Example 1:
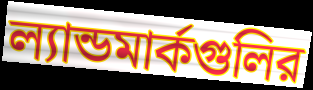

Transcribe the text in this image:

ল্যান্ডমার্কগুলির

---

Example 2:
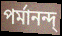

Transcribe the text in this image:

পর্মানন্দ্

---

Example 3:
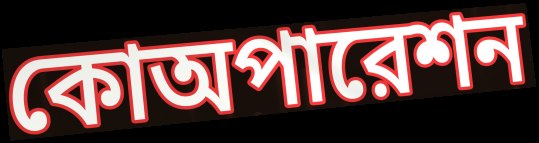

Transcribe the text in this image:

কোঅপারেশন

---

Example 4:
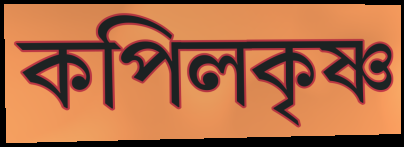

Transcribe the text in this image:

কপিলকৃষ্ণ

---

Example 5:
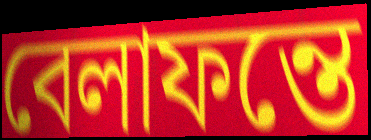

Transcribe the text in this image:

বেলাফন্তে